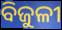
ବିଜୁଳୀ